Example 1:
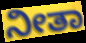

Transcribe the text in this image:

ನೀತಾ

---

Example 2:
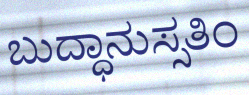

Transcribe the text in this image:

ಬುದ್ಧಾನುಸ್ಸತಿಂ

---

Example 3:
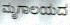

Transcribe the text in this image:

ಮೃಗಾಲಯದ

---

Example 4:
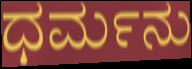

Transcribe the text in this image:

ಧರ್ಮನು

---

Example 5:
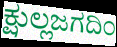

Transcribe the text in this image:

ಕ್ಷುಲ್ಲಜಗದಿಂ